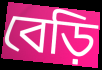
বেড়ি